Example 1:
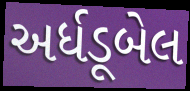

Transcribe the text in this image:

અર્ધડૂબેલ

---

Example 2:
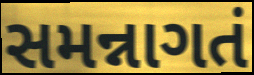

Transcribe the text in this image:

સમન્નાગતં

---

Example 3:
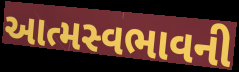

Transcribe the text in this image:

આત્મસ્વભાવની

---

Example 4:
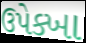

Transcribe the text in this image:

ઉપેક્ખા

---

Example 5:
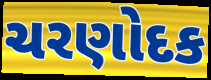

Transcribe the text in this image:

ચરણોદક